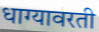
धाग्यावरती